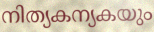
നിത്യകന്യകയും